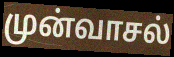
முன்வாசல்